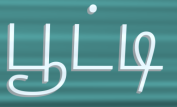
பூட்டி